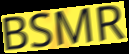
BSMR